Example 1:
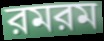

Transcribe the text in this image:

রমরম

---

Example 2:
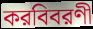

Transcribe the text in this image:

করবিবরণী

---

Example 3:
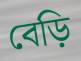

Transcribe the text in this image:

বেড়ি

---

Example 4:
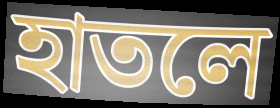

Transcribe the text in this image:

হাতলে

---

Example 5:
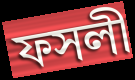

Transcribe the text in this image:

ফসলী